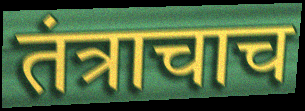
तंत्राचाच